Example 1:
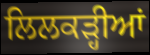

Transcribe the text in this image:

ਲਿਲਕੜ੍ਹੀਆਂ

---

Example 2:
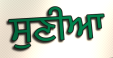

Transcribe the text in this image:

ਸੁਣੀਆ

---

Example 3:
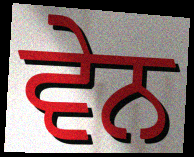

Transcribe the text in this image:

ਵੇਨ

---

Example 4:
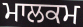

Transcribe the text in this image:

ਮਾਲਕਮ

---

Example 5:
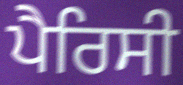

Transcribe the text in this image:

ਪੈਰਿਸੀ